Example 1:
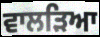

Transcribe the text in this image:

ਵਾਲੜਿਆ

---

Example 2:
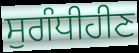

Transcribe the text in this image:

ਸੁਗੰਧੀਹੀਣ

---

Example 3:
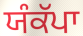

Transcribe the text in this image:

ਯੰਕੱਪਾ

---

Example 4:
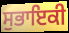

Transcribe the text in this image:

ਸੁਭਾਇਕੀ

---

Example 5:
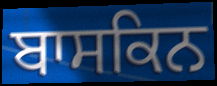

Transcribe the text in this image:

ਬਾਸਕਿਨ